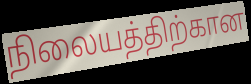
நிலையத்திற்கான